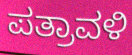
ಪತ್ರಾವಳಿ